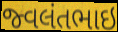
જ્વલંતભાઇ